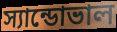
স্যান্ডোভাল